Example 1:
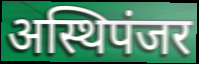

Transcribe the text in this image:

अस्थिपंजर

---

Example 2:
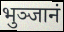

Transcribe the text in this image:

भुञ्जानं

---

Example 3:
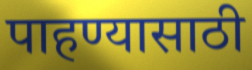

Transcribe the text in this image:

पाहण्यासाठी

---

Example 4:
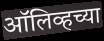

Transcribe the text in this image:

ऑलिव्हच्या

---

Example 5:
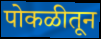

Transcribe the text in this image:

पोकळीतून